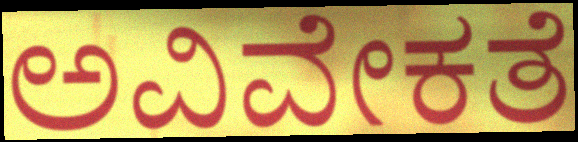
ಅವಿವೇಕತೆ